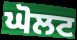
ਘੋਲਟ